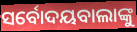
ସର୍ବୋଦୟବାଲାଙ୍କୁ